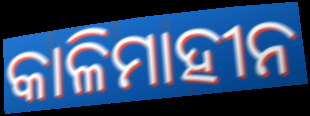
କାଳିମାହୀନ